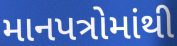
માનપત્રોમાંથી